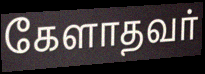
கேளாதவர்